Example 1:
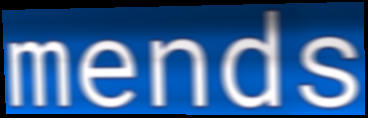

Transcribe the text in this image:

mends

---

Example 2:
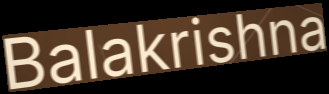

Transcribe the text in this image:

Balakrishna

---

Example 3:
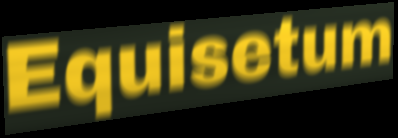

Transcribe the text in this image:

Equisetum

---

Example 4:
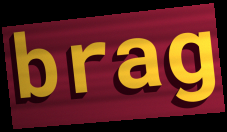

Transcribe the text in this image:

brag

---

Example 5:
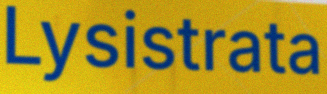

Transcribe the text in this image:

Lysistrata